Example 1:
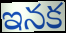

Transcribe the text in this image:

ఇనక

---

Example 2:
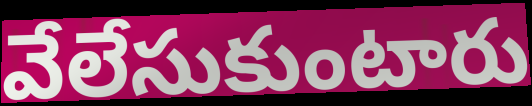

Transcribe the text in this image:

వేలేసుకుంటారు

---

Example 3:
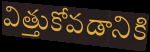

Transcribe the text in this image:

విత్తుకోవడానికి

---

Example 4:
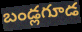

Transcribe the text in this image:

బండ్లగూడ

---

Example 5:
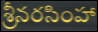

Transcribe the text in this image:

శ్రీనరసింహా